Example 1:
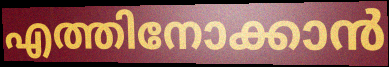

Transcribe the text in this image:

എത്തിനോക്കാൻ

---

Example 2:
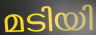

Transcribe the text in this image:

മടിയി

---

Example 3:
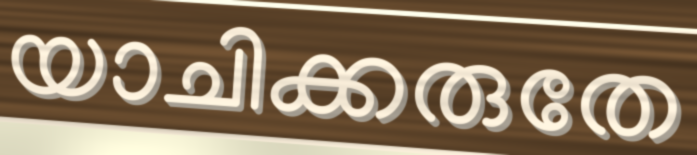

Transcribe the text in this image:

യാചിക്കരുതേ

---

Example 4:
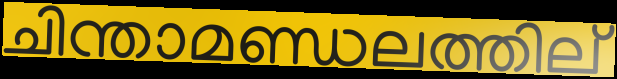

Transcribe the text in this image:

ചിന്താമണ്ഡലത്തില്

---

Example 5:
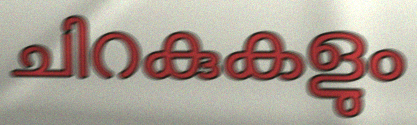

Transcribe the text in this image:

ചിറകുകളും